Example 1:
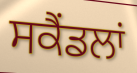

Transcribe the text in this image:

ਸਕੈਂਡਲਾਂ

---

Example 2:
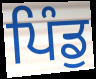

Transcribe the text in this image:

ਪਿੰਡੁ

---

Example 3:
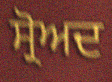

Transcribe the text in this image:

ਸ੍ਰੋਅਦ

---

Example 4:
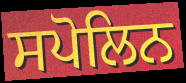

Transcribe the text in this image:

ਸਪੋਲਿਨ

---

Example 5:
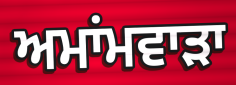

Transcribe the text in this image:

ਅਮਾਂਮਵਾੜਾ